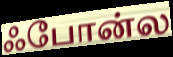
ஃபோன்ல